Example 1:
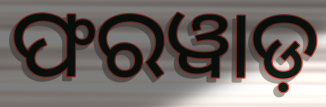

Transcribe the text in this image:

ଫରୱାଡ଼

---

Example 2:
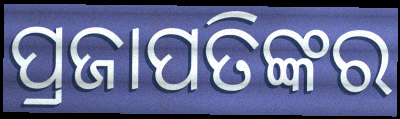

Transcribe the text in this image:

ପ୍ରଜାପତିଙ୍କର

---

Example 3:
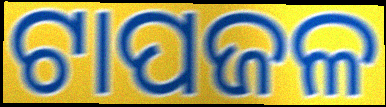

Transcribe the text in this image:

ଟାପଜଳ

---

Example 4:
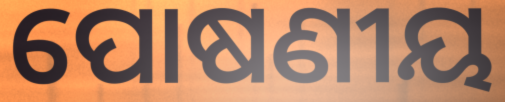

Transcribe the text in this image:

ପୋଷଣୀୟ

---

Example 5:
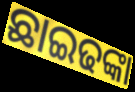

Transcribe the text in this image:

ଛାଇଢଙ୍କା